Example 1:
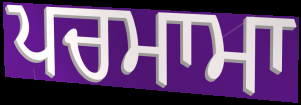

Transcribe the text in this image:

ਪਚਮਾਮਾ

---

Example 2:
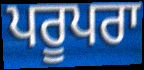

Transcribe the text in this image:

ਪਰੂਪਰਾ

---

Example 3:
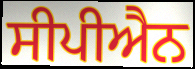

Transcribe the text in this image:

ਸੀਪੀਐਨ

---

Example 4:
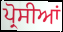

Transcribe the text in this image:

ਪ੍ਰੋਸੀਆਂ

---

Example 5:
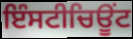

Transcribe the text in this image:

ਇੰਸਟੀਚਿਊਂਟ